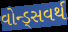
વોન્ડ્સવર્થ